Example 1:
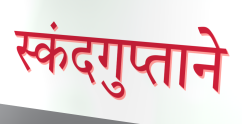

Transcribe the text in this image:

स्कंदगुप्ताने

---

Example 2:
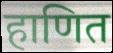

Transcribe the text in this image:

हाणित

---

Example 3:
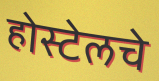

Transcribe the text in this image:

होस्टेलचे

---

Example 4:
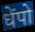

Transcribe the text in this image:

धेंपो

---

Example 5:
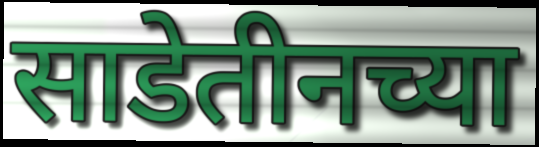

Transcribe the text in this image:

साडेतीनच्या